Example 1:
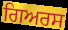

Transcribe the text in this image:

ਗਿਅਰਸ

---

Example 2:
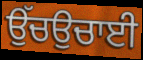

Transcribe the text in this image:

ਉੱਚਉਚਾਈ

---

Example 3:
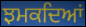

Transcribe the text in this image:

ਝਮਕਦਿਆਂ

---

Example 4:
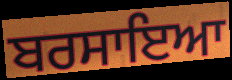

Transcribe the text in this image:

ਬਰਸਾਇਆ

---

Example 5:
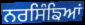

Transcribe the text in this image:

ਨਰਸਿੰਙਿਆਂ